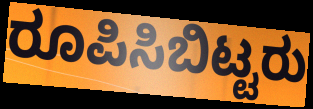
ರೂಪಿಸಿಬಿಟ್ಟರು